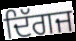
ਦਿੱਗਜ